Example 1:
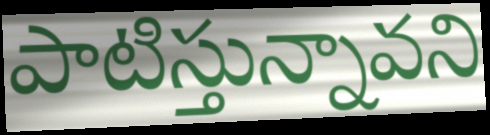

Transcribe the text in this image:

పాటిస్తున్నావని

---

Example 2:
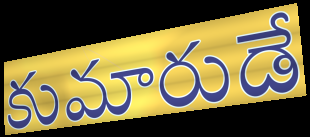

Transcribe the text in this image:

కుమారుడే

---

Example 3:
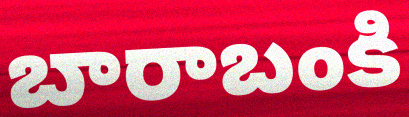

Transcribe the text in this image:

బారాబంకి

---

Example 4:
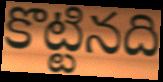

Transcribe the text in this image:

కొట్టినది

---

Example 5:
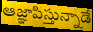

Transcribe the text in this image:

ఆజ్ఞాపిస్తున్నాడే